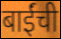
बाईंची